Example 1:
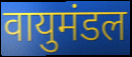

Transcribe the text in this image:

वायुमंडल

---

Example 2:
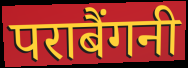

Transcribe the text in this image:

पराबैंगनी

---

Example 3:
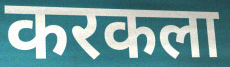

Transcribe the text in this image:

करकला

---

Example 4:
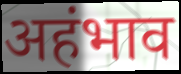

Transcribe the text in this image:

अहंभाव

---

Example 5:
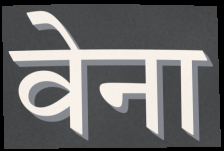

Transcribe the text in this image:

वेना